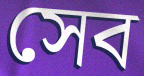
সেব